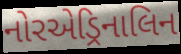
નોરએડ્રિનાલિન